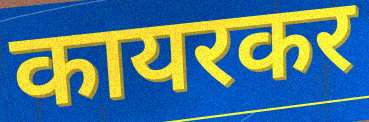
कायरकर